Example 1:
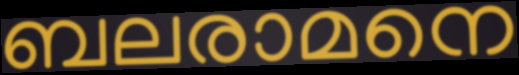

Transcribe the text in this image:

ബലരാമനെ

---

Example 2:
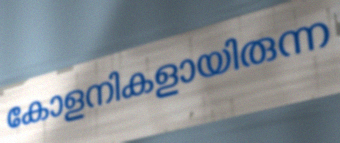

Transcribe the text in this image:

കോളനികളായിരുന്ന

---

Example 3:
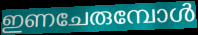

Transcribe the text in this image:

ഇണചേരുമ്പോൾ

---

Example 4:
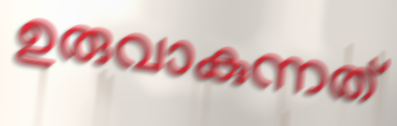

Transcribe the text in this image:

ഉരുവാകുന്നത്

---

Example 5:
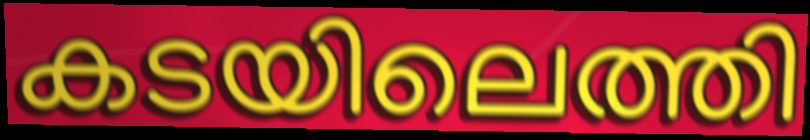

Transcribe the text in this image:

കടയിലെത്തി